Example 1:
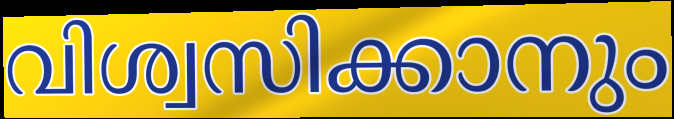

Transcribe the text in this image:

വിശ്വസിക്കാനും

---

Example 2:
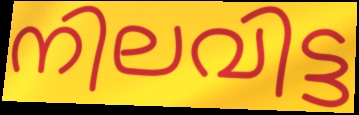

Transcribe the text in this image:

നിലവിട്ട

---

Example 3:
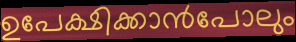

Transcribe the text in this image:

ഉപേക്ഷിക്കാൻപോലും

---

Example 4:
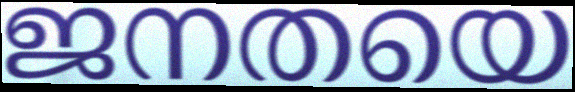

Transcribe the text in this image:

ജനതയെ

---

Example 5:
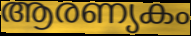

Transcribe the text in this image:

ആരണ്യകം